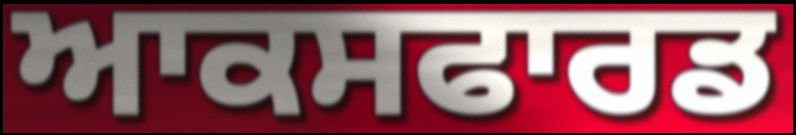
ਆਕਸਫਾਰਡ